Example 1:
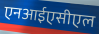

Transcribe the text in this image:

एनआईएसीएल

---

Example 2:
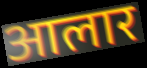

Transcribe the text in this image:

आलार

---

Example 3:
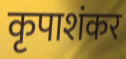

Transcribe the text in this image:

कृपाशंकर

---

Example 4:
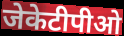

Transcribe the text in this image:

जेकेटीपीओ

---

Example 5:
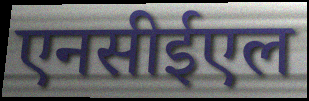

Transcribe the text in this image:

एनसीईएल